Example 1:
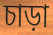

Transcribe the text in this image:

চাড়া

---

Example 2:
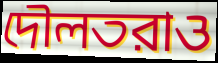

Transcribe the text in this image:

দৌলতরাও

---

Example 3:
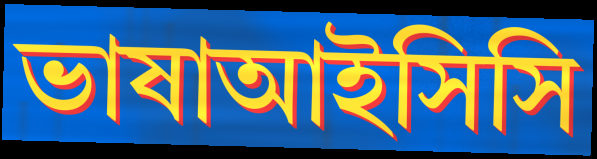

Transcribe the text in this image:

ভাষাআইসিসি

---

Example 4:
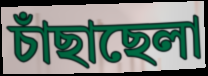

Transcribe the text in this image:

চাঁছাছেলা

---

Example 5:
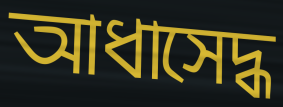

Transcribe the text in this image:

আধাসেদ্ধ